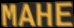
MAHE